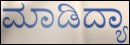
ಮಾಡಿದ್ಯಾ